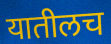
यातीलच